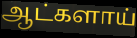
ஆட்களாய்